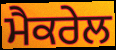
ਮੈਕਰੇਲ